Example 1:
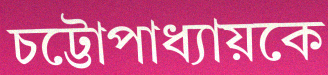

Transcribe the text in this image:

চট্টোপাধ্যায়কে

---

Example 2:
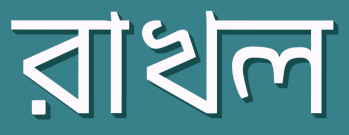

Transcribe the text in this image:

রাখল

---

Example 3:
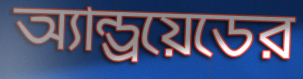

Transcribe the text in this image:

অ্যান্ড্রয়েডের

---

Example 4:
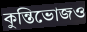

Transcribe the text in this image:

কুন্তিভোজও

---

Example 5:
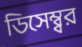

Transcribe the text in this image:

ডিসেম্ব্বর